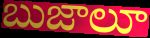
బుజాలూ